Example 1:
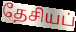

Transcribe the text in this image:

தேசியப்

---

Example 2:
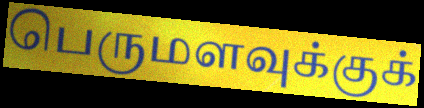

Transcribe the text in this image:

பெருமளவுக்குக்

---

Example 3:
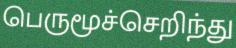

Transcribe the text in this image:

பெருமூச்செறிந்து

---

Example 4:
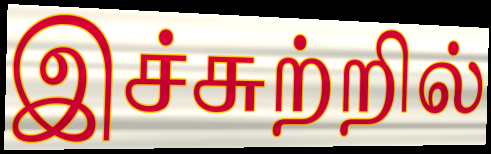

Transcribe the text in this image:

இச்சுற்றில்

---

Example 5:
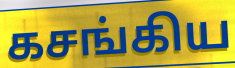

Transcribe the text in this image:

கசங்கிய